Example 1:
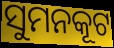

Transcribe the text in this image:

ସୁମନକୂଟ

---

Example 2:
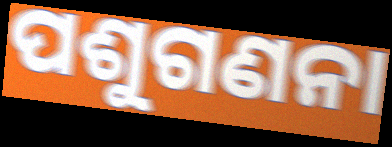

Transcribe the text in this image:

ପଶୁଗଣନା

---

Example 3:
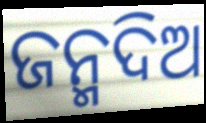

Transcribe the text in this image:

ଜନ୍ମଦିଅ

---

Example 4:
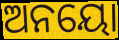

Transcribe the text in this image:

ଅନୟୋ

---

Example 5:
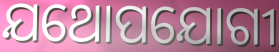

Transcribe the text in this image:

ଯଥୋପଯୋଗୀ